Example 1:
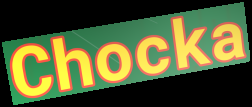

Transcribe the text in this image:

Chocka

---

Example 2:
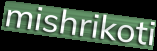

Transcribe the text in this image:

mishrikoti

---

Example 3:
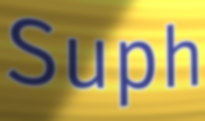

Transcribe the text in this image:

Suph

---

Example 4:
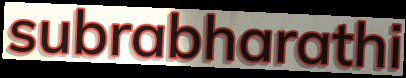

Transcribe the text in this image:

subrabharathi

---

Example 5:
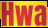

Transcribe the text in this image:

Hwa